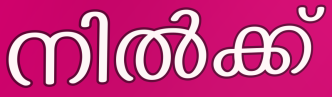
നിൽക്ക്